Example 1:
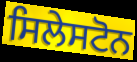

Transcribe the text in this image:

ਸਿਲੇਸਟੋਨ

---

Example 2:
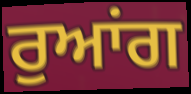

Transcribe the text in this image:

ਰੁਆਂਗ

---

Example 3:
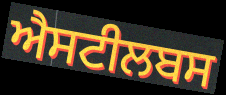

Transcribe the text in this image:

ਐਸਟੀਲਬਸ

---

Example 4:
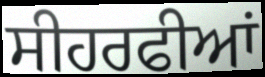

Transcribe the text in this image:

ਸੀਹਰਫੀਆਂ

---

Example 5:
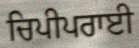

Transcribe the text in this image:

ਚਿਪੀਪਰਾਈ